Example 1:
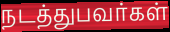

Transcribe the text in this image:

நடத்துபவர்கள்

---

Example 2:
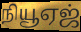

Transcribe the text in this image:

நியூஏஜ்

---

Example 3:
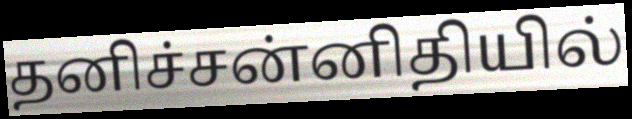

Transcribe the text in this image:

தனிச்சன்னிதியில்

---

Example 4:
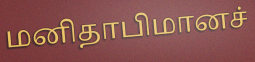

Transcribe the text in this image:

மனிதாபிமானச்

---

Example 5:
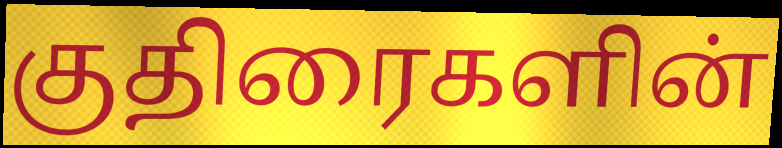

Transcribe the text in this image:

குதிரைகளின்